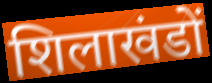
शिलाखंडों